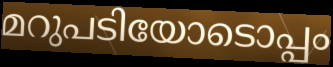
മറുപടിയോടൊപ്പം